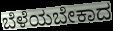
ಬೆಳೆಯಬೇಕಾದ